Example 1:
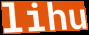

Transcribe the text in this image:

lihu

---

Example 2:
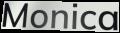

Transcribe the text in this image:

Monica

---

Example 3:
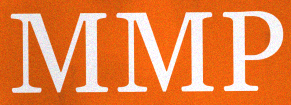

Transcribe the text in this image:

MMP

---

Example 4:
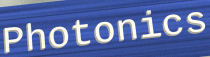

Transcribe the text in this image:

Photonics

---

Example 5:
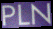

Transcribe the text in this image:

PLN